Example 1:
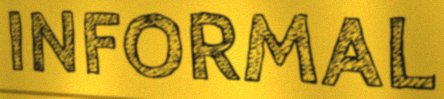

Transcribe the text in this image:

INFORMAL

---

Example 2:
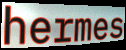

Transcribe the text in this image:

hermes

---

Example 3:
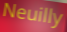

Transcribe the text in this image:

Neuilly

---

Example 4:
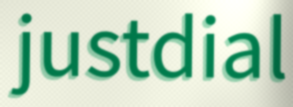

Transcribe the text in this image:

justdial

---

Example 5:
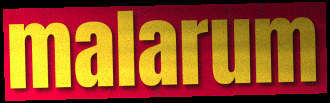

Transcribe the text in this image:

malarum